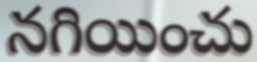
నగియించు